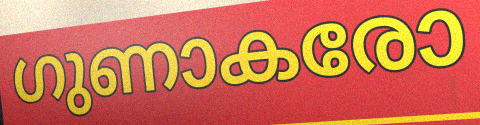
ഗുണാകരോ